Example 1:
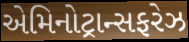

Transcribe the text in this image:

એમિનોટ્રાન્સફરેઝ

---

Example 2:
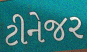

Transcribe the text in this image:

ટીનેજર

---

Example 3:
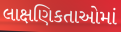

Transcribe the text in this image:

લાક્ષણિકતાઓમાં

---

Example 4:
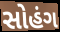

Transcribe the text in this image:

સોહંગ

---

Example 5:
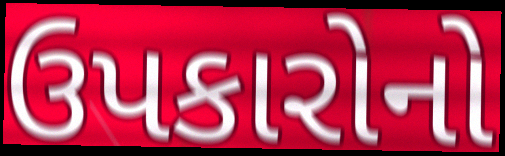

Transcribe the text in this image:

ઉપકારોનો